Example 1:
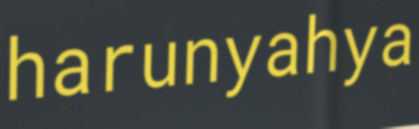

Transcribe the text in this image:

harunyahya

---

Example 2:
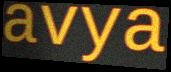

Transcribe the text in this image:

avya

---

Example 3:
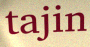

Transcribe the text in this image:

tajin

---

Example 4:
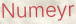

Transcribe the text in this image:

Numeyr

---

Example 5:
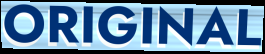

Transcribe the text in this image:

ORIGINAL